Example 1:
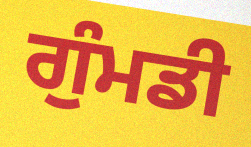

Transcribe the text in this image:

ਗੁੰਮਡੀ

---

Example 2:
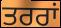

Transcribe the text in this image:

ਤਰਰਾਂ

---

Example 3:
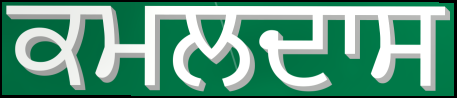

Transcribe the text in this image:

ਕਮਲਦਾਸ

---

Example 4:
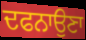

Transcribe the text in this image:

ਦਫਨਾਉਣਾ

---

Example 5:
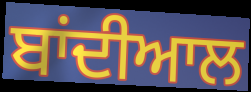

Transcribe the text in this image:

ਬਾਂਦੀਆਲ